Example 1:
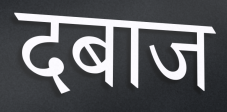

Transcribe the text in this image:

दबाज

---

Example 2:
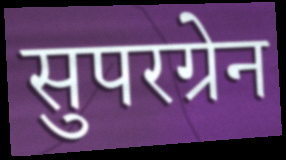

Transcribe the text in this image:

सुपरग्रेन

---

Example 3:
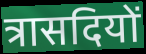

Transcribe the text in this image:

त्रासदियों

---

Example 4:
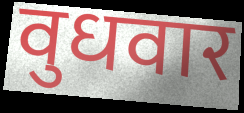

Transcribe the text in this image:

वुधवार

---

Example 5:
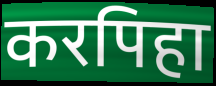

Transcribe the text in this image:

करपिहा